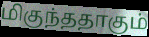
மிகுந்ததாகும்